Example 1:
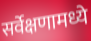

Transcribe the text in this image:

सर्वेक्षणामध्ये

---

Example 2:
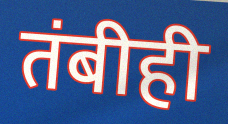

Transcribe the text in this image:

तंबीही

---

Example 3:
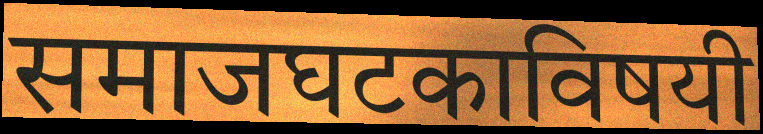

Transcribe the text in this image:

समाजघटकाविषयी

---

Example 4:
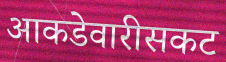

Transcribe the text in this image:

आकडेवारीसकट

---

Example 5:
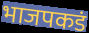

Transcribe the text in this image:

भाजपकडं